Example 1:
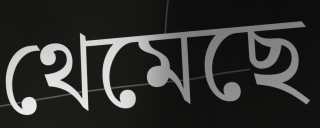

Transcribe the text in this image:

থেমেছে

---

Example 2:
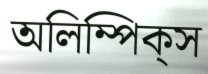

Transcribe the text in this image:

অলিম্পিক্‌স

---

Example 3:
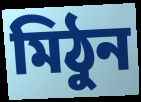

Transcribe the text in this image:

মিঠুন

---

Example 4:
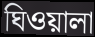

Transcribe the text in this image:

ঘিওয়ালা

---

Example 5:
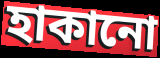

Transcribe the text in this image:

হাকানো